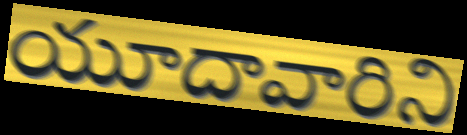
యూదావారిని